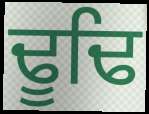
ਢੂਢਿ